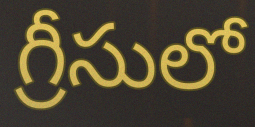
గ్రీసులో